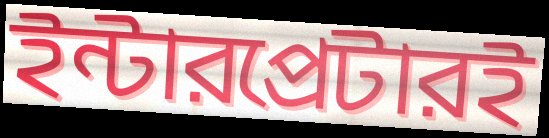
ইন্টারপ্রেটারই